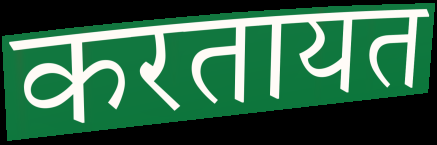
करतायत